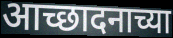
आच्छादनाच्या